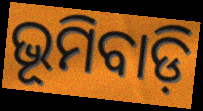
ଭୂମିବାଡ଼ି